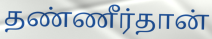
தண்ணீர்தான்